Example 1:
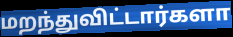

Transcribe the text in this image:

மறந்துவிட்டார்களா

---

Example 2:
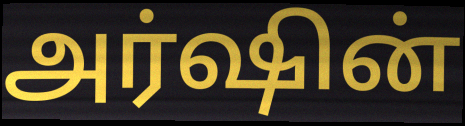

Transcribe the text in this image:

அர்ஷின்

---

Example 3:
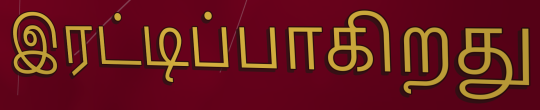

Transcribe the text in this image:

இரட்டிப்பாகிறது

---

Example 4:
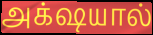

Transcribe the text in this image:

அக்‌ஷயால்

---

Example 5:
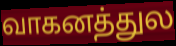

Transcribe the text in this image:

வாகனத்துல